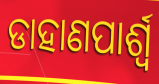
ଡାହାଣପାର୍ଶ୍ୱ